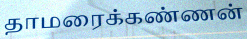
தாமரைக்கண்ணன்